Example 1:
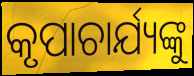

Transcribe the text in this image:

କୃପାଚାର୍ଯ୍ୟଙ୍କୁ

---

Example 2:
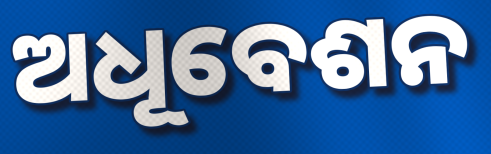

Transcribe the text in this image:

ଅଧୂବେଶନ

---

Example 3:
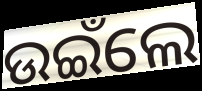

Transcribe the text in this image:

ଉଇଁଲେ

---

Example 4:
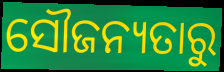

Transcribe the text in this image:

ସୌଜନ୍ୟତାରୁ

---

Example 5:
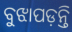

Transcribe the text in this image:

ବୁଝାପଡ଼ନ୍ତି